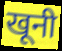
खूनी